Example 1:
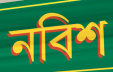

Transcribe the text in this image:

নবিশ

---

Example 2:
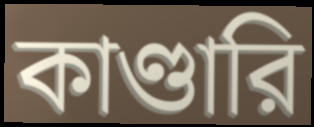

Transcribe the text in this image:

কাণ্ডারি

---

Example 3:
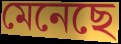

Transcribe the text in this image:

মেনেছে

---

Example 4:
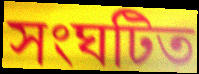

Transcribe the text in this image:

সংঘটিত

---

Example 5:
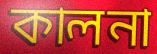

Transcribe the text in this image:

কালনা